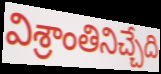
విశ్రాంతినిచ్చేది